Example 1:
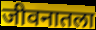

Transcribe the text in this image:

जीवनातला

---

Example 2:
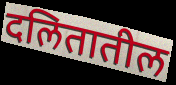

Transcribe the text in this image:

दलितातील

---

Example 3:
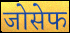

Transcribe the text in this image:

जोसेफ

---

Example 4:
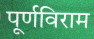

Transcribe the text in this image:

पूर्णविराम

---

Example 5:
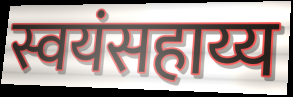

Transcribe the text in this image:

स्वयंसहाय्य